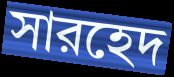
সারহেদ